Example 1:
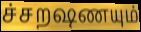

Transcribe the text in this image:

ச்சறஷணயும்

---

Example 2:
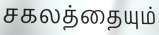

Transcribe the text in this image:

சகலத்தையும்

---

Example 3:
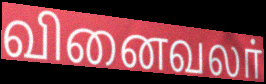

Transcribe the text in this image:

வினைவலர்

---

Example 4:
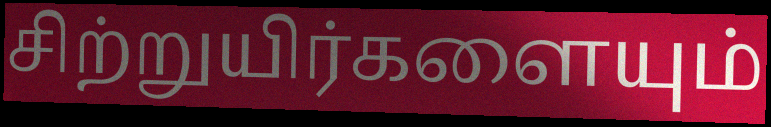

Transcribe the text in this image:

சிற்றுயிர்களையும்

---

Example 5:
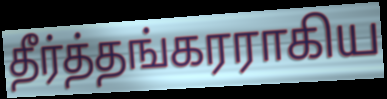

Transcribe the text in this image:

தீர்த்தங்கரராகிய